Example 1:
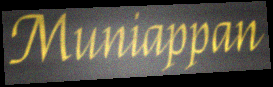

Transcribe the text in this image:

Muniappan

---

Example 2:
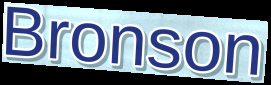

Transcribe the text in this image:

Bronson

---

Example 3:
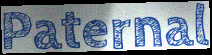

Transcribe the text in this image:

Paternal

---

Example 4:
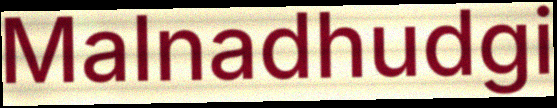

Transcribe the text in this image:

Malnadhudgi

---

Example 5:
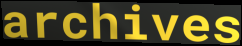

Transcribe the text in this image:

archives